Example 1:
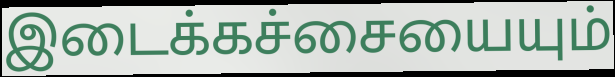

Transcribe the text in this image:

இடைக்கச்சையையும்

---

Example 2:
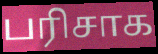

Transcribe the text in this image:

பரிசாக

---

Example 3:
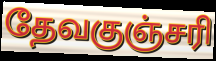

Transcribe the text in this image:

தேவகுஞ்சரி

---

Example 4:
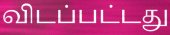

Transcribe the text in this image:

விடப்பட்டது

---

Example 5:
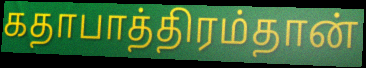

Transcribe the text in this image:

கதாபாத்திரம்தான்